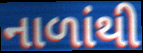
નાળાંથી